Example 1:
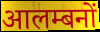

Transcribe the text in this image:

आलम्बनों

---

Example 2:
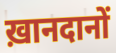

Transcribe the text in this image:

ख़ानदानों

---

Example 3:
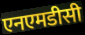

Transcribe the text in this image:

एनएमडीसी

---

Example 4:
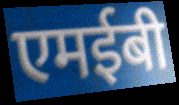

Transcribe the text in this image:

एमईबी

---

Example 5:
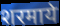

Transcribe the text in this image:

शरमाये